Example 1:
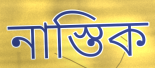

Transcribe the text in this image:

নাস্তিক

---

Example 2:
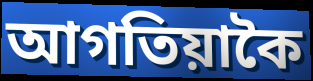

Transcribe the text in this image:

আগতিয়াকৈ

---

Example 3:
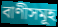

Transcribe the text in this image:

বাণীসমূহ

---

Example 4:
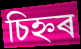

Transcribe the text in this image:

চিহ্নৰ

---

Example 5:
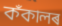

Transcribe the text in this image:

কঁকালৰ